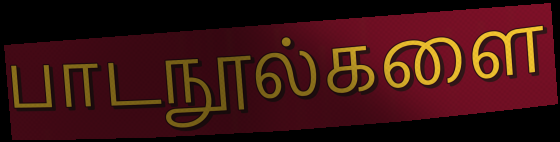
பாடநூல்களை